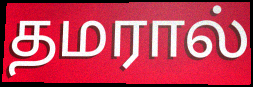
தமரால்